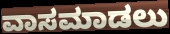
ವಾಸಮಾಡಲು